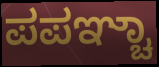
ಪಪಞ್ಚಾ